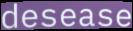
desease